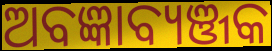
ଅବଜ୍ଞାବ୍ୟଞ୍ଜକ